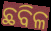
ଛବିଳ